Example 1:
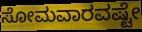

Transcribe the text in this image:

ಸೋಮವಾರವಷ್ಟೇ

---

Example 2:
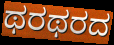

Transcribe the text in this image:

ಥರಥರದ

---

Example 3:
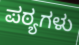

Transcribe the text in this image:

ಪಠ್ಯಗಳು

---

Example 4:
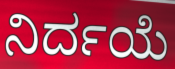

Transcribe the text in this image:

ನಿರ್ದಯೆ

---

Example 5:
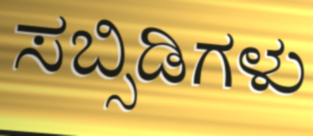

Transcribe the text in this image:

ಸಬ್ಸಿಡಿಗಳು